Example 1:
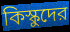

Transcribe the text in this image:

কিস্কুদের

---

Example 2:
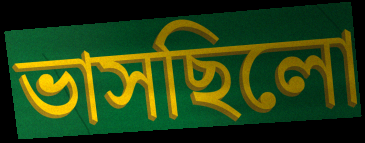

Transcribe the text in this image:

ভাসছিলো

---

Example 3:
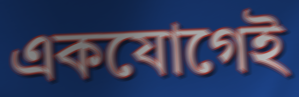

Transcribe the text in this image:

একযোগেই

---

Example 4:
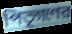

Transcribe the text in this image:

পিতৃগণের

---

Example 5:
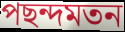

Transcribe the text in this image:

পছন্দমতন